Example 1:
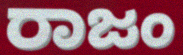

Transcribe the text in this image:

ರಾಜಂ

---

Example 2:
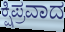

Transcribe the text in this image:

ಕ್ಷಿಪ್ರವಾದ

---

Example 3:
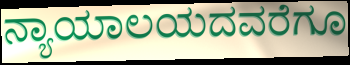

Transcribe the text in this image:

ನ್ಯಾಯಾಲಯದವರೆಗೂ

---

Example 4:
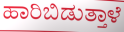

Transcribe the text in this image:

ಹಾರಿಬಿಡುತ್ತಾಳೆ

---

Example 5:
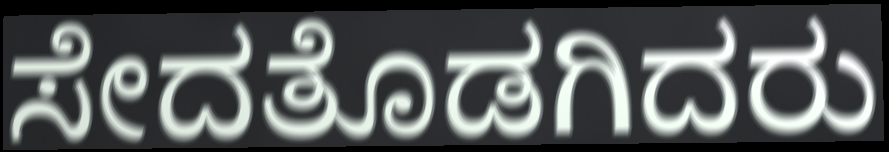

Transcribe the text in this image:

ಸೇದತೊಡಗಿದರು